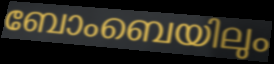
ബോംബെയിലും